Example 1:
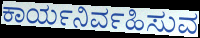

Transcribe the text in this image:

ಕಾರ್ಯನಿರ್ವಹಿಸುವ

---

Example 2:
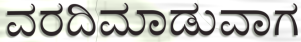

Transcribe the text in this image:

ವರದಿಮಾಡುವಾಗ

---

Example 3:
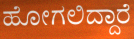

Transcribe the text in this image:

ಹೋಗಲಿದ್ದಾರೆ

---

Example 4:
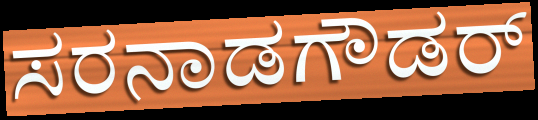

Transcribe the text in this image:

ಸರನಾಡಗೌಡರ್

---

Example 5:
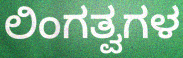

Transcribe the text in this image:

ಲಿಂಗತ್ವಗಳ